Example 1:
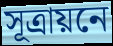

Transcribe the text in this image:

সূত্রায়নে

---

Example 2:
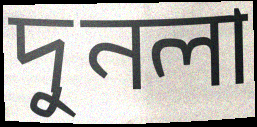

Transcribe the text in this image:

দুনলা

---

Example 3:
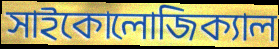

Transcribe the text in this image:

সাইকোলোজিক্যাল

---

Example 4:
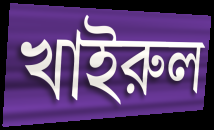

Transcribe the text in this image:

খাইরুল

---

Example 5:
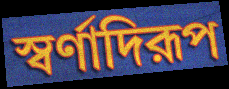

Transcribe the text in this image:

স্বর্ণাদিরূপ